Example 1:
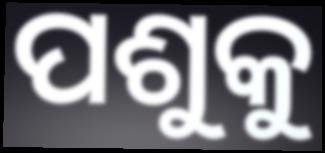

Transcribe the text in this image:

ପଶୁକୁ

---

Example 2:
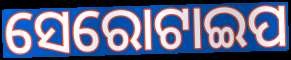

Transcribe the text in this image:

ସେରୋଟାଇପ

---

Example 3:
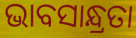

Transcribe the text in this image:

ଭାବସାନ୍ଧ୍ରତା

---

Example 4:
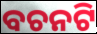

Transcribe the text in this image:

ବଚନଟି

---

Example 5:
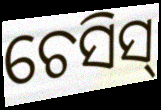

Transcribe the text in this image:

ଚେସିସ୍